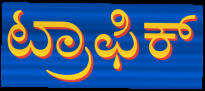
ಟ್ರಾಫಿಕ್